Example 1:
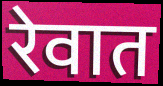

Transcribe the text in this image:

रेवात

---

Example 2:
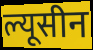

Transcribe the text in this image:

ल्यूसीन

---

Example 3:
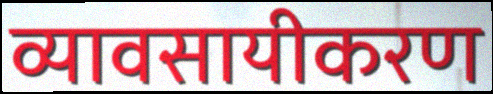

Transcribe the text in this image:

व्यावसायीकरण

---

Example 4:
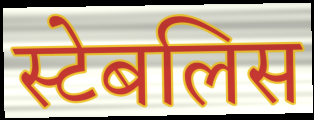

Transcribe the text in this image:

स्टेबलिस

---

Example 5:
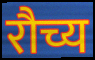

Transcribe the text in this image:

रौच्य